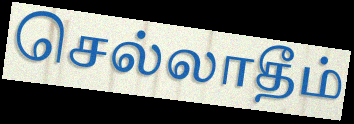
செல்லாதீம்